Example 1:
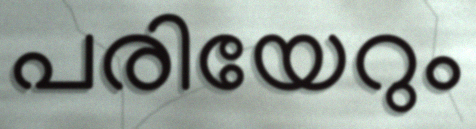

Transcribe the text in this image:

പരിയേറും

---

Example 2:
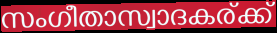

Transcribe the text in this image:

സംഗീതാസ്വാദകര്ക്ക്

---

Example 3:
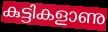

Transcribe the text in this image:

കുട്ടികളാണു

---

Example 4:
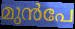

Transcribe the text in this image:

മുൻപേ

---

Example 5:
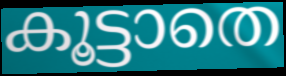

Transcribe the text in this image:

കൂട്ടാതെ